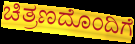
ಚಿತ್ರಣದೊಂದಿಗೆ